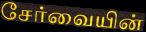
சேர்வையின்